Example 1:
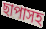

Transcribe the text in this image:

ছাপাসহ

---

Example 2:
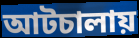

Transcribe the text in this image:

আটচালায়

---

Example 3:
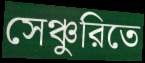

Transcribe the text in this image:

সেঞ্চুরিতে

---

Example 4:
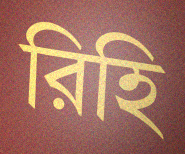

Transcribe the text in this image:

রিহি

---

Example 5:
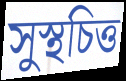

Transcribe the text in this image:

সুস্থচিত্ত